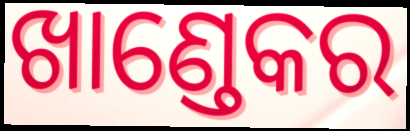
ଖାଣ୍ଡେକର